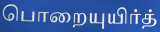
பொறையுயிர்த்